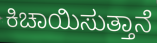
ಕಿಚಾಯಿಸುತ್ತಾನೆ